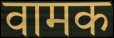
वामक